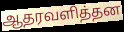
ஆதரவளித்தன